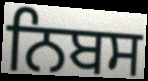
ਨਿਬਸ